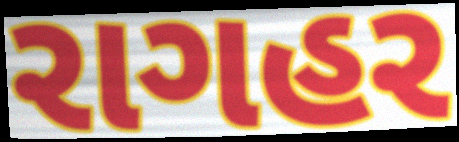
રાગહર